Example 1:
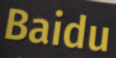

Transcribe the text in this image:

Baidu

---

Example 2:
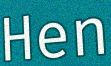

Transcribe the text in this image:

Hen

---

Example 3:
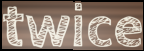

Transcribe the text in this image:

twice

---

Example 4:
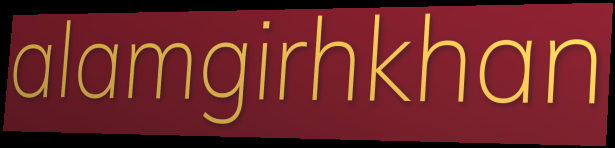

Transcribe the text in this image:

alamgirhkhan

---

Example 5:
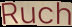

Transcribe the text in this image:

Ruch